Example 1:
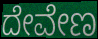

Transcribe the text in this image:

ದೇವೇಣ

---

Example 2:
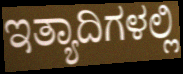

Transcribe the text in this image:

ಇತ್ಯಾದಿಗಳಲ್ಲಿ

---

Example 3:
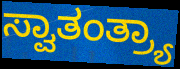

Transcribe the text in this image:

ಸ್ವಾತಂತ್ರ್ಯಾ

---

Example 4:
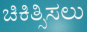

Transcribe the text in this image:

ಚಿಕಿತ್ಸಿಸಲು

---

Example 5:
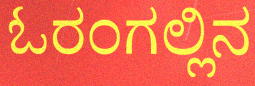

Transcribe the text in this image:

ಓರಂಗಲ್ಲಿನ